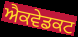
ਐਕਵੇਡਕਟ